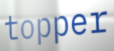
topper